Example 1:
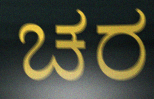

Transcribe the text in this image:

ಚರ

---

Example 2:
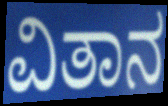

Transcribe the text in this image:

ವಿತಾನ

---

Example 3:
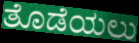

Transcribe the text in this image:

ತೊಡೆಯಲು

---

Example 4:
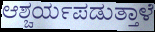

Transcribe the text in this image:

ಆಶ್ಚರ್ಯಪಡುತ್ತಾಳೆ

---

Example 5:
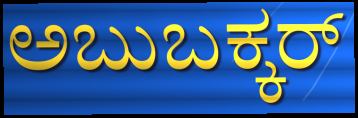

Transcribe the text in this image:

ಅಬುಬಕ್ಕರ್